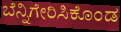
ಬೆನ್ನಿಗೇರಿಸಿಕೊಂಡ